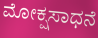
ಮೋಕ್ಷಸಾಧನೆ